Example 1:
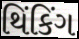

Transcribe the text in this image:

થિંકિંગ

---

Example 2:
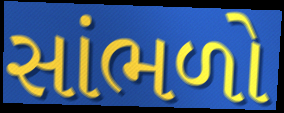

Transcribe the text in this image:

સાંભળો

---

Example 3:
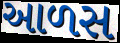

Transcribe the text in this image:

આળસ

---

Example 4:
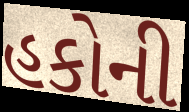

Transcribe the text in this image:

હકોની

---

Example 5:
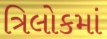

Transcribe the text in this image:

ત્રિલોકમાં